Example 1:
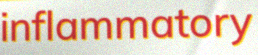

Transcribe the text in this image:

inflammatory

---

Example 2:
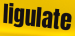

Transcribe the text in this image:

ligulate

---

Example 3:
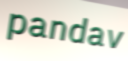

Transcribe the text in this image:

pandav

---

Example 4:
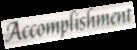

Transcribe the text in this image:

Accomplishment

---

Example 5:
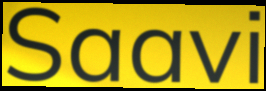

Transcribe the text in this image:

Saavi